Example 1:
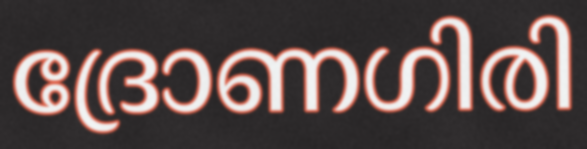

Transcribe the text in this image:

ദ്രോണഗിരി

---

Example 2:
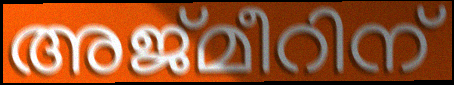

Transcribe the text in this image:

അജ്മീറിന്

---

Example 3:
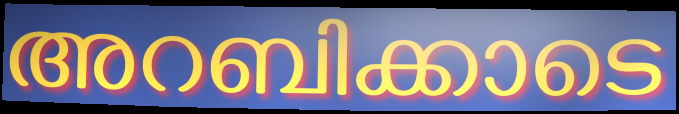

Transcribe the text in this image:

അറബിക്കാടെ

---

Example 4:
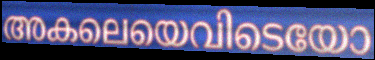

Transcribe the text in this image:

അകലെയെവിടെയോ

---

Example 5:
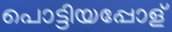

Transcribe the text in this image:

പൊട്ടിയപ്പോള്